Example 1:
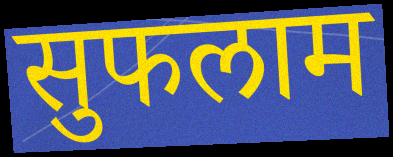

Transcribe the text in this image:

सुफलाम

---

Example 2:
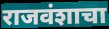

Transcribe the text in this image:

राजवंशाचा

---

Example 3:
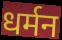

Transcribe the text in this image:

धर्मन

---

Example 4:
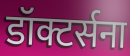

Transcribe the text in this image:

डॉक्टर्सना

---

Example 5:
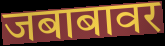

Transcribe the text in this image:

जबाबावर